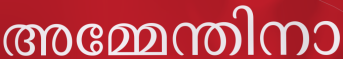
അമ്മേന്തിനാ